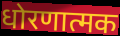
धोरणात्मक